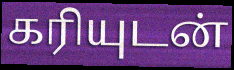
கரியுடன்